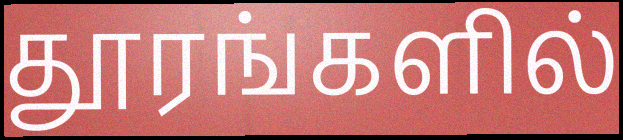
தூரங்களில்